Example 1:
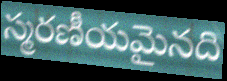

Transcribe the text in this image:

స్మరణీయమైనది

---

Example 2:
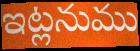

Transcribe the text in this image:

ఇట్లనుము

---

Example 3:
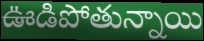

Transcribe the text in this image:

ఊడిపోతున్నాయి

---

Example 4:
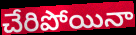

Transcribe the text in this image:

చేరిపోయినా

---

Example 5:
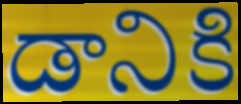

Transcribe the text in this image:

డానికి